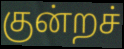
குன்றச்